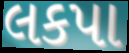
લકપા